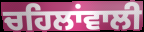
ਚਹਿਲਾਂਵਾਲੀ